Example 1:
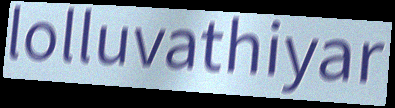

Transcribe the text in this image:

lolluvathiyar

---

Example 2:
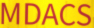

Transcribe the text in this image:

MDACS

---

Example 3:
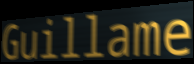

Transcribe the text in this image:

Guillame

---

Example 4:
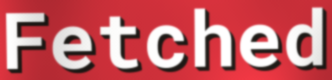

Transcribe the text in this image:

Fetched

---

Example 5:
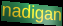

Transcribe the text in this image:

nadigan